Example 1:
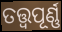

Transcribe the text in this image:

ତତ୍ତ୍ୱପୂର୍ଣ୍ଣ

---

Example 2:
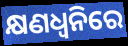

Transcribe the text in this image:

କ୍ଷଣଧ୍ୱନିରେ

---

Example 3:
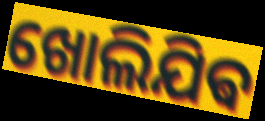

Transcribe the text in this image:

ଖୋଲିଯିଵ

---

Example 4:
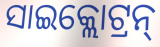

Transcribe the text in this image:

ସାଇକ୍ଲୋଟ୍ରନ୍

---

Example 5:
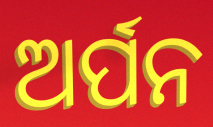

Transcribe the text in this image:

ଅର୍ପନ